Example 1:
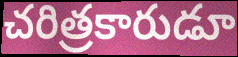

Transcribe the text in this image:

చరిత్రకారుడూ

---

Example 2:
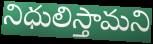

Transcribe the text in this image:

నిధులిస్తామని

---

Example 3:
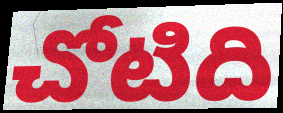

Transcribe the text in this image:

చోటిది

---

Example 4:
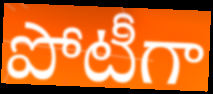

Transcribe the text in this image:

పోటీగా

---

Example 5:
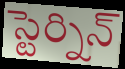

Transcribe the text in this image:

స్టెర్నిన్